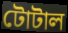
টোটাল